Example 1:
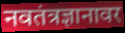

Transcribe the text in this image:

नवतंत्रज्ञानावर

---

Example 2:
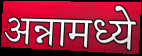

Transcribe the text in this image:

अन्नामध्ये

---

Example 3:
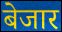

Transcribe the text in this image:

बेजार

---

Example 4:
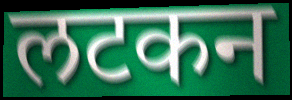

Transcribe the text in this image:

लटकन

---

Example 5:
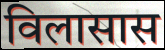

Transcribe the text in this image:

विलासास